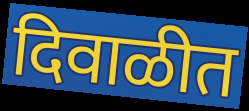
दिवाळीत